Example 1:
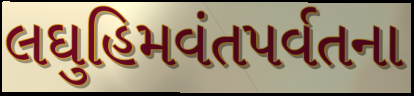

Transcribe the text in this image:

લઘુહિમવંતપર્વતના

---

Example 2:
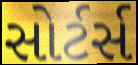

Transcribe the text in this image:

સોર્ટર્સ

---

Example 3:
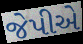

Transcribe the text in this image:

જેપીએ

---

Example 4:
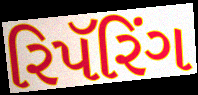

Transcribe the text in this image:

રિપૅરિંગ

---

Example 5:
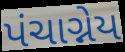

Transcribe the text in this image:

પંચાગ્નેય